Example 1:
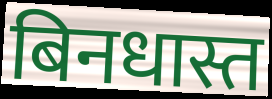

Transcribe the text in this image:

बिनधास्त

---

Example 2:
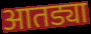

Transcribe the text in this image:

आतड्या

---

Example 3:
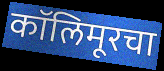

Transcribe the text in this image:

कॉलिमूरचा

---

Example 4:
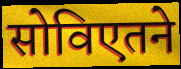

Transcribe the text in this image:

सोविएतने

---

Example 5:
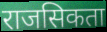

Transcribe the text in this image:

राजसिकता